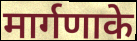
मार्गणाके